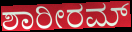
ಶಾರೀರಮ್